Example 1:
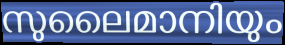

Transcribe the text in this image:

സുലൈമാനിയും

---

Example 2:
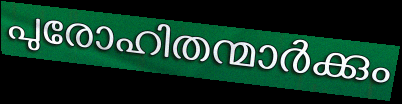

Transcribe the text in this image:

പുരോഹിതന്മാർക്കും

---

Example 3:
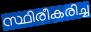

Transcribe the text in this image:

സ്ഥിരീകരിച്ച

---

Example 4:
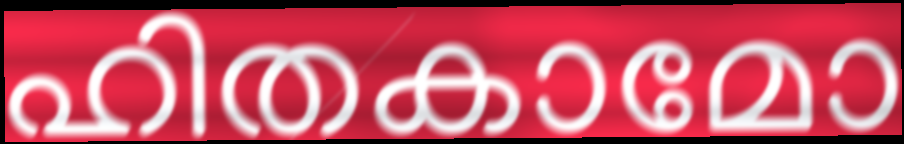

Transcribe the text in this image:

ഹിതകാമോ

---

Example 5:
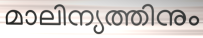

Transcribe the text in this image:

മാലിന്യത്തിനും